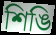
শিঙি